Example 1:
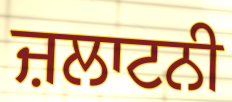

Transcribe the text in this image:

ਜ਼ਲਾਟਨੀ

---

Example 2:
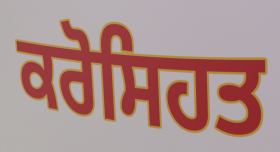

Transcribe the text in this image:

ਕਰੋਸਿਹਤ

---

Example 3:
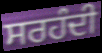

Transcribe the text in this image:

ਸਰਹੰਦੀ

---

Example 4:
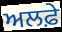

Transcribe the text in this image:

ਅਲਫ਼ੇ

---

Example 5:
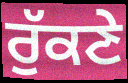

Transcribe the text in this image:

ਰੁੱਕਣੇ